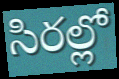
సిరల్లో